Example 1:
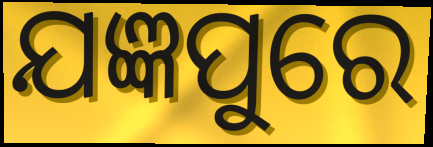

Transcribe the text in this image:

ଯଜ୍ଞପୁରେ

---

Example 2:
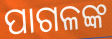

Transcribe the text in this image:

ପାଗଳଙ୍କ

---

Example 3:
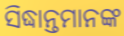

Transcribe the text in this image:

ସିଦ୍ଧାନ୍ତମାନଙ୍କ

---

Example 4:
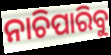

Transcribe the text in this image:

ନାଚିପାରିବୁ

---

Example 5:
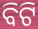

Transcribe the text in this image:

ବିଟି